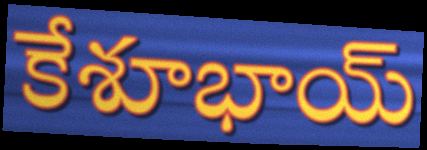
కేశూభాయ్